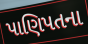
પાણિપતના